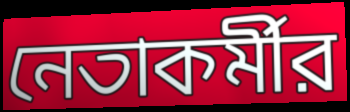
নেতাকর্মীর